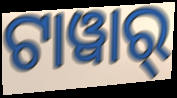
ଟାୱାର୍